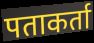
पताकर्ता